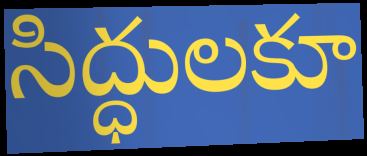
సిద్ధులకూ